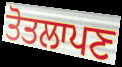
ਤੋਤਲਾਪਣ